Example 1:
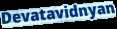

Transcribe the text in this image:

Devatavidnyan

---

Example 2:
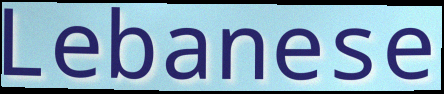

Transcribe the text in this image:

Lebanese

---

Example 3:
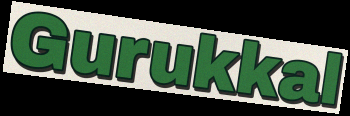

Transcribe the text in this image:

Gurukkal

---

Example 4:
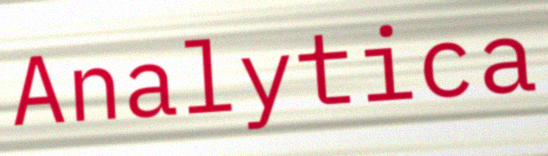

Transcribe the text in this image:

Analytica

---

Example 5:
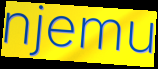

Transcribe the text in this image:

njemu